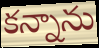
కన్నాను